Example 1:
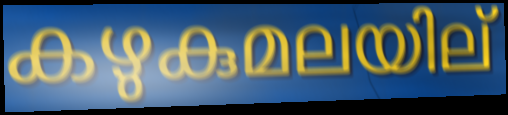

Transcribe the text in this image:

കഴുകുമലയില്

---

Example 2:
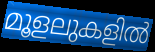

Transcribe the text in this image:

മൂളലുകളിൽ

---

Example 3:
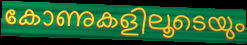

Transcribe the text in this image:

കോണുകളിലൂടെയും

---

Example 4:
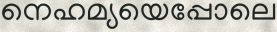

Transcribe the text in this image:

നെഹമ്യയെപ്പോലെ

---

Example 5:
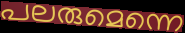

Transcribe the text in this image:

പലരുമെന്നെ